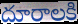
దూరాలకి